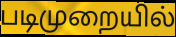
படிமுறையில்